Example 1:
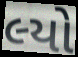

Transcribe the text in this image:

લ્યો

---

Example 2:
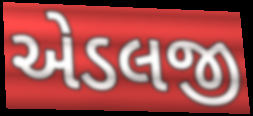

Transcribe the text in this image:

એડલજી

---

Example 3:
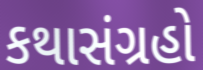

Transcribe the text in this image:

કથાસંગ્રહો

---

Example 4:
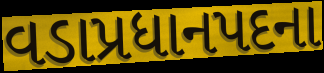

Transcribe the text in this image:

વડાપ્રધાનપદના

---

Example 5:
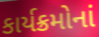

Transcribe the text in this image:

કાર્યક્રમોનાં